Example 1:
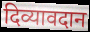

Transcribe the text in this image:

दिव्यावदान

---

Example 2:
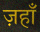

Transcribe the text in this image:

ज़हाँ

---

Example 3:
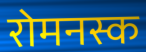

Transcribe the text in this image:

रोमनस्क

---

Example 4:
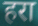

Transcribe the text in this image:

हरा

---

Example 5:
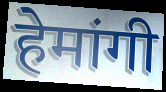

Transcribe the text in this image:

हेमांगी